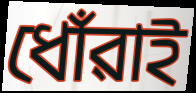
ধোঁৱাই